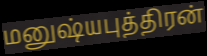
மனுஷ்யபுத்திரன்